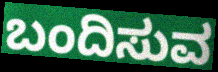
ಬಂದಿಸುವ